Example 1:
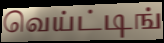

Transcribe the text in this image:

வெய்ட்டிங்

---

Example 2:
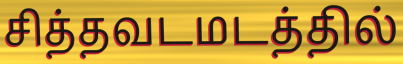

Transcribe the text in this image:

சித்தவடமடத்தில்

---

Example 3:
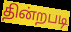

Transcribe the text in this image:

தின்றபடி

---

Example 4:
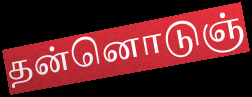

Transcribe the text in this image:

தன்னொடுஞ்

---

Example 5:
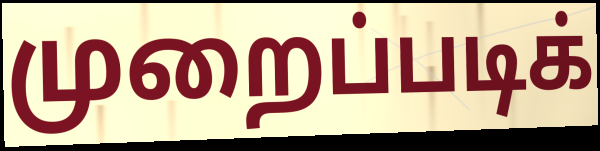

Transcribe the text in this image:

முறைப்படிக்